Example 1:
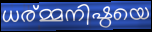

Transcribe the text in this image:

ധര്മ്മനിഷ്ഠയെ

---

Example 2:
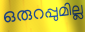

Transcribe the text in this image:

ഒരുറപ്പുമില്ല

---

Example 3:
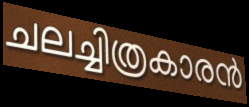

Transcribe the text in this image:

ചലച്ചിത്രകാരൻ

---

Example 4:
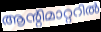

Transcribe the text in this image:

ആന്റിമാറ്ററിൽ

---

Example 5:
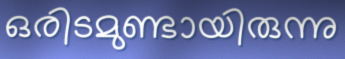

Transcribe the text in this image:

ഒരിടമുണ്ടായിരുന്നു